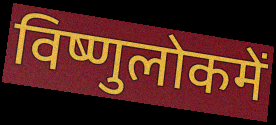
विष्णुलोकमें